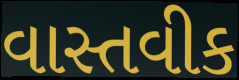
વાસ્તવીક